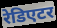
रेडिएटर